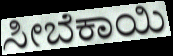
ಸೀಬೆಕಾಯಿ